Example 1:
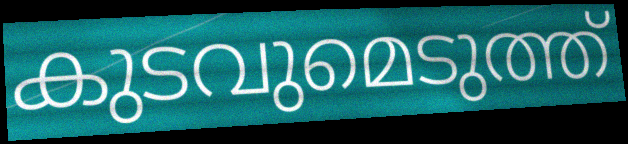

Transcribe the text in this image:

കുടവുമെടുത്ത്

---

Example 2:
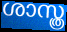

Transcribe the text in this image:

ശാസ്ത്ര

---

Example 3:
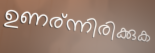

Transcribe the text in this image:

ഉണര്ന്നിരിക്കുക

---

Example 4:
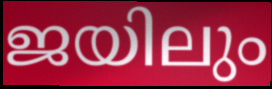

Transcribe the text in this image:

ജയിലും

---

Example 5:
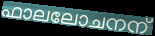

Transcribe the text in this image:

ഫാലലോചനന്